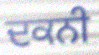
ਦਕਨੀ